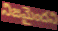
నిజమైందని